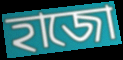
হাজো